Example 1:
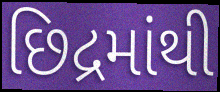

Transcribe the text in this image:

છિદ્રમાંથી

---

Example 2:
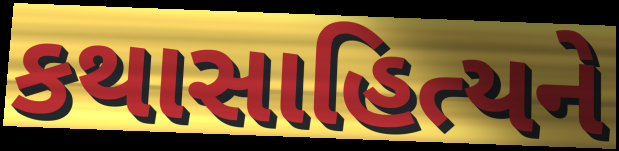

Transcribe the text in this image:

કથાસાહિત્યને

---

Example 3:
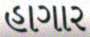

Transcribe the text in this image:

હાગાર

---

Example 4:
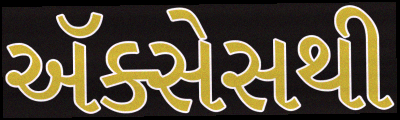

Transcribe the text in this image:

ઍક્સેસથી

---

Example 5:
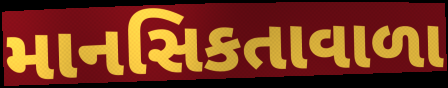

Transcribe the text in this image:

માનસિકતાવાળા